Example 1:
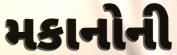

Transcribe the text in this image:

મકાનોની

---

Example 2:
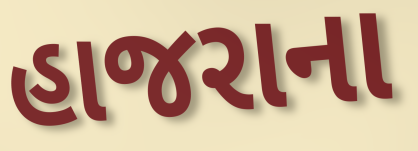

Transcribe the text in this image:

હાજરાના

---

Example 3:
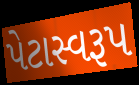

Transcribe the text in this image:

પેટાસ્વરૂપ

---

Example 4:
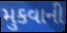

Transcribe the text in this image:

મુકવાની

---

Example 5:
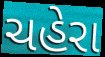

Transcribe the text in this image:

ચહેરા